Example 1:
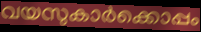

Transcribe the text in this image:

വയസുകാർക്കൊപ്പം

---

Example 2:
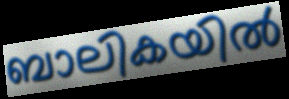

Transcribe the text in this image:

ബാലികയിൽ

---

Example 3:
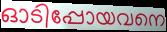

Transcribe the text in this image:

ഓടിപ്പോയവനെ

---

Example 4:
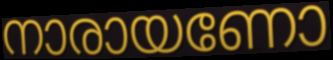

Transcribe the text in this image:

നാരായണോ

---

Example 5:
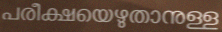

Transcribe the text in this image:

പരീക്ഷയെഴുതാനുള്ള